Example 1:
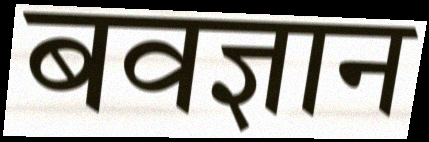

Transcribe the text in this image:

बवज्ञान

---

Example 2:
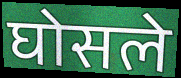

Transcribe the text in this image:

घोसले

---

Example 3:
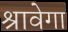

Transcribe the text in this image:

श्रावेगा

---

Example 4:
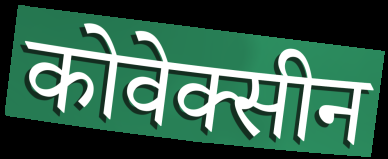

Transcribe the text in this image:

कोवेक्सीन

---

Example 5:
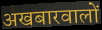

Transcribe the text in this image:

अखबारवालों